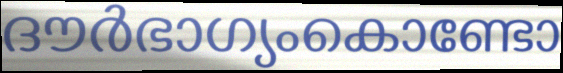
ദൗർഭാഗ്യംകൊണ്ടോ